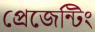
প্রেজেন্টিং